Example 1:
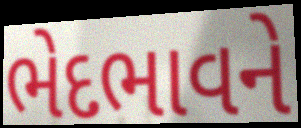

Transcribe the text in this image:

ભેદભાવને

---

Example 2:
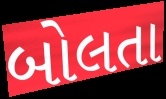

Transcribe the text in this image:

બોલતા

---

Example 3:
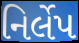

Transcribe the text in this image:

નિર્લેપ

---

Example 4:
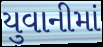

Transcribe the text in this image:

યુવાનીમાં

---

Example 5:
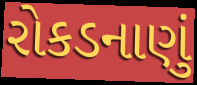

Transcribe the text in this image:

રોકડનાણું